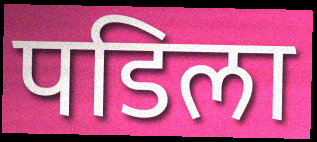
पडिला